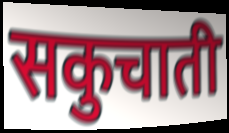
सकुचाती